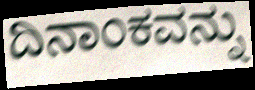
ದಿನಾಂಕವನ್ನು